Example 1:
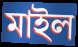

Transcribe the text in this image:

মাইল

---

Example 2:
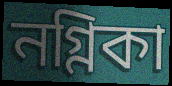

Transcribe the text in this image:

নগ্নিকা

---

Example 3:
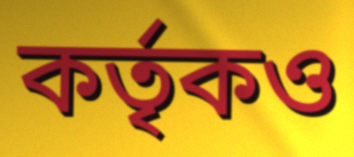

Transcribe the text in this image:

কর্তৃকও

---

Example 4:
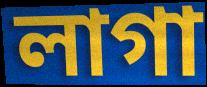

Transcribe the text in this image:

লাগা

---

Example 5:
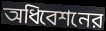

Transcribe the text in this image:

অধিবেশনের